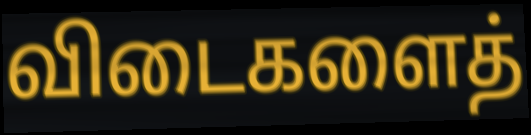
விடைகளைத்